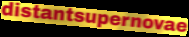
distantsupernovae